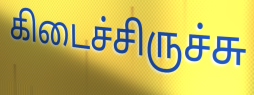
கிடைச்சிருச்சு